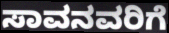
ಸಾವನವರಿಗೆ